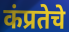
कंप्रतेचे